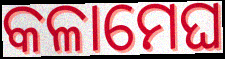
କଳାମେଘ